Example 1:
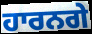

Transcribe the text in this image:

ਹਾਰਨਗੇ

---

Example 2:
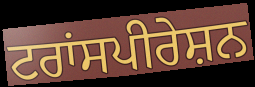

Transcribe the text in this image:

ਟਰਾਂਸਪੀਰੇਸ਼ਨ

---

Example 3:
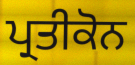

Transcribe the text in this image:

ਪ੍ਰਤੀਕੋਨ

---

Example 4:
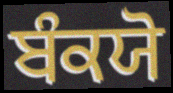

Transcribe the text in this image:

ਬੰਕਯੋ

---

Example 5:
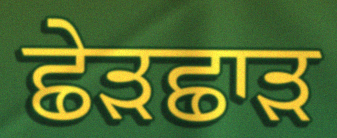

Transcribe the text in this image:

ਛੇੜਛਾੜ